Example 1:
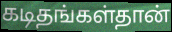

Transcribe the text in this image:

கடிதங்கள்தான்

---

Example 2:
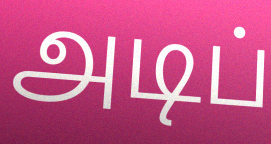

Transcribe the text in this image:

அடிப்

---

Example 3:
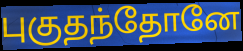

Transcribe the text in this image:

புகுதந்தோனே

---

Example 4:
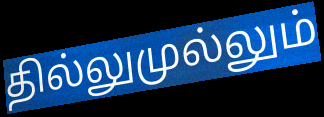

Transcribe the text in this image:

தில்லுமுல்லும்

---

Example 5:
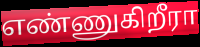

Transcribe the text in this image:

எண்ணுகிறீரா